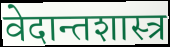
वेदान्तशास्त्र